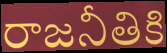
రాజనీతికి